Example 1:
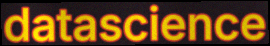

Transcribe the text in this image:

datascience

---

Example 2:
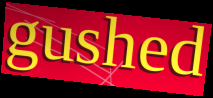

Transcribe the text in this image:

gushed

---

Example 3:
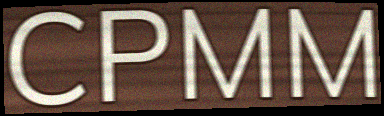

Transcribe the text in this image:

CPMM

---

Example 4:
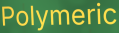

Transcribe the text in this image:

Polymeric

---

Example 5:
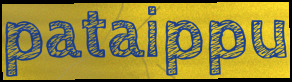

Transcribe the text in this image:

pataippu